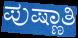
ಪುಷ್ಣಾತಿ